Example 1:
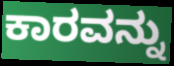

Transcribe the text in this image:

ಕಾರವನ್ನು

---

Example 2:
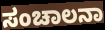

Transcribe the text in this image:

ಸಂಚಾಲನಾ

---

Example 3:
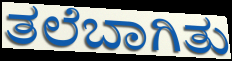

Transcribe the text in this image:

ತಲೆಬಾಗಿತು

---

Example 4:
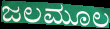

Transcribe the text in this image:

ಜಲಮೂಲ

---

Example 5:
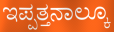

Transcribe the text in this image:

ಇಪ್ಪತ್ತನಾಲ್ಕೂ